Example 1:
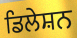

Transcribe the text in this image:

ਡਿਲੇਸ਼ਨ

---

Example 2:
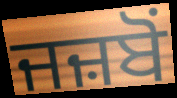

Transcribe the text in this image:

ਜਜ਼ਬੋਂ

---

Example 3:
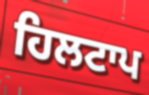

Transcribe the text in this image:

ਹਿਲਟਾਪ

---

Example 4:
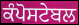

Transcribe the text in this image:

ਕੰਪੋਸਟੇਬਲ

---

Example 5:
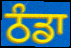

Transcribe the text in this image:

ਠੰਡਾ